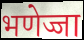
भणेज्जा